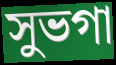
সুভগা